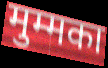
मुम्मका